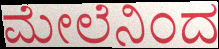
ಮೇಲೆನಿಂದ